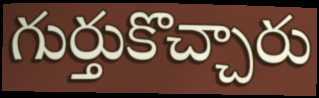
గుర్తుకొచ్చారు